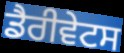
ਡੈਰੀਵੇਟਸ